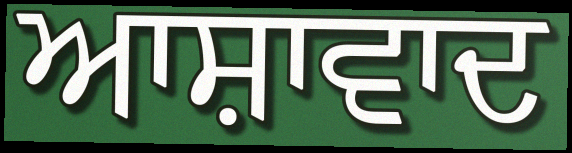
ਆਸ਼ਾਵਾਦ